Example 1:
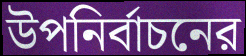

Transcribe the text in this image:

উপনির্বাচনের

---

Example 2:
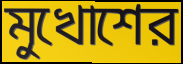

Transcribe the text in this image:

মুখোশের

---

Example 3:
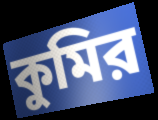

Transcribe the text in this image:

কুমির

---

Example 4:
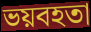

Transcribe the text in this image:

ভয়বহতা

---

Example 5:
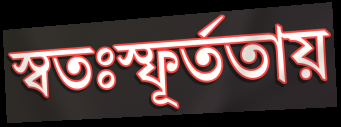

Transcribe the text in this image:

স্বতঃস্ফূর্ততায়